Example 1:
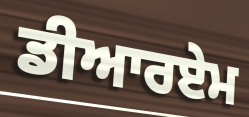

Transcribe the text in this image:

ਡੀਆਰਏਮ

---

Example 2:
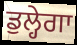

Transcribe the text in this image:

ਡੁਲ੍ਹੇਗਾ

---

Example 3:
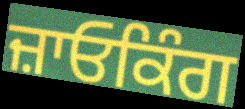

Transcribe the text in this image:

ਜ਼ਾਓਕਿੰਗ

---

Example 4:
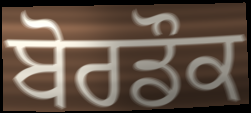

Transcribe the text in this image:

ਬੋਰਡੌਕ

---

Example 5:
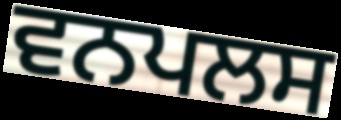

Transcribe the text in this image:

ਵਨਪਲਸ